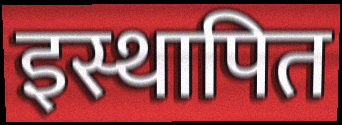
इस्थापित